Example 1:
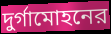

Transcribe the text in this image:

দুর্গামোহনের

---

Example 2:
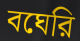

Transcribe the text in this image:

বঘেরি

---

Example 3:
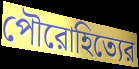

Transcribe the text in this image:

পৌরোহিত্যের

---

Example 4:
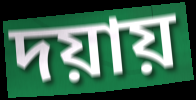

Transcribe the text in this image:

দয়ায়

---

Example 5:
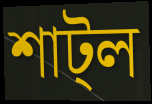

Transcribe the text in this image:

শাট্ল